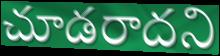
చూడరాదని